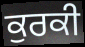
ਕੁਰਕੀ